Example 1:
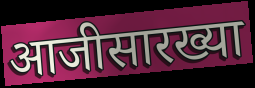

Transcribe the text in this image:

आजीसारख्या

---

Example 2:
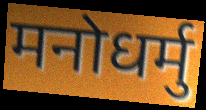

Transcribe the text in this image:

मनोधर्मु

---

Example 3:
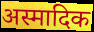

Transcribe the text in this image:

अस्मादिक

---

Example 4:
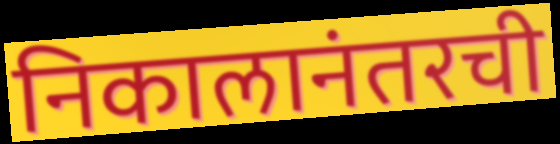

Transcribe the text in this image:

निकालानंतरची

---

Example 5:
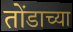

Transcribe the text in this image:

तोंडाच्या